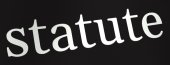
statute